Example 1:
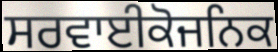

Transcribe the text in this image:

ਸਰਵਾਈਕੋਜਨਿਕ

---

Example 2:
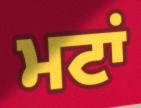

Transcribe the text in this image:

ਮਟਾਂ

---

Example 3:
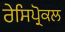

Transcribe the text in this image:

ਰੇਸਿਪ੍ਰੋਕਲ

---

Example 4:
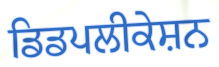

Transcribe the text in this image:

ਡਿਡਪਲੀਕੇਸ਼ਨ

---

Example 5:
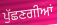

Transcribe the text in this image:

ਪੁੱਛਣਗੀਆਂ